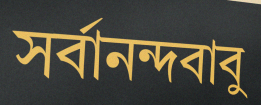
সর্বানন্দবাবু